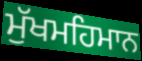
ਮੁੱਖਮਹਿਮਾਨ